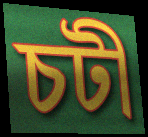
চটী